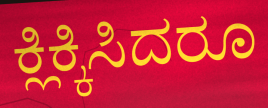
ಕ್ಲಿಕ್ಕಿಸಿದರೂ